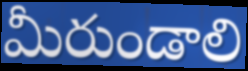
మీరుండాలి